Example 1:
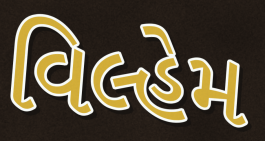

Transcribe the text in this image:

વિલ્હેમ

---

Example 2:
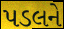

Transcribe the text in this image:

પડલને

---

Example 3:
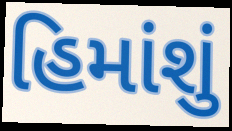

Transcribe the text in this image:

હિમાંશું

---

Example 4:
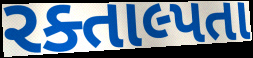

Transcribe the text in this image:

રક્તાલ્પતા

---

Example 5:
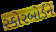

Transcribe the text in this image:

સ્કોરબોર્ડને